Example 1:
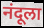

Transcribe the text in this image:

नंदूला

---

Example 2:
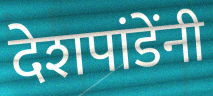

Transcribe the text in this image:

देशपांडेंनी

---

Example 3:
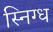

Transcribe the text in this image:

स्निग्ध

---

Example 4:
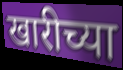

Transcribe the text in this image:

खारीच्या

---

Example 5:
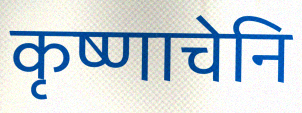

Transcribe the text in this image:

कृष्णाचेनि